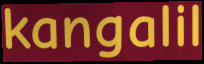
kangalil